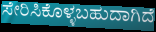
ಸೇರಿಸಿಕೊಳ್ಳಬಹುದಾಗಿದೆ